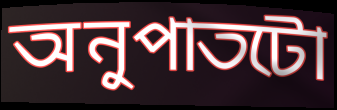
অনুপাতটো